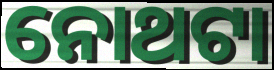
ନୋଥଟା